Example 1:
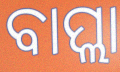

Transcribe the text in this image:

ବାପ୍ଲା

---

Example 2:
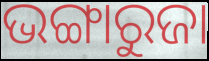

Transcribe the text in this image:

ଭଙ୍ଗାରୁଜା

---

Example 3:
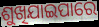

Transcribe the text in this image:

ଶୁଖିଯାଇପାରେ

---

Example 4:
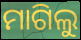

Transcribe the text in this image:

ମାଗିଲୁ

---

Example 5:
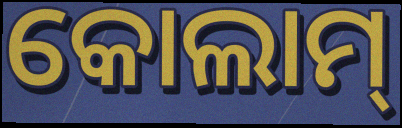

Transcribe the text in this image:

କୋଲାମ୍